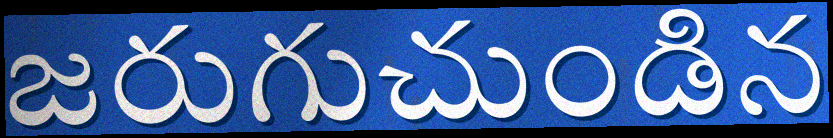
జరుగుచుండిన